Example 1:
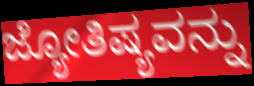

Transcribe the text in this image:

ಜ್ಯೋತಿಷ್ಯವನ್ನು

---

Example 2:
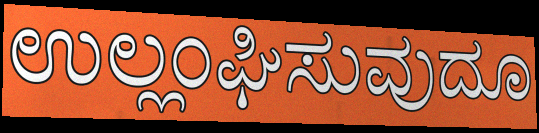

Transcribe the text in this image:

ಉಲ್ಲಂಘಿಸುವುದೂ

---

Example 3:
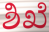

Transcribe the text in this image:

ಶಿಖೆ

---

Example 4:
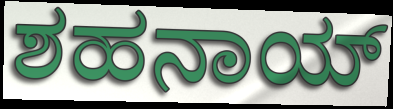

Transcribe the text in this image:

ಶಹನಾಯ್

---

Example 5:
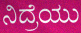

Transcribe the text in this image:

ನಿದ್ರೆಯು